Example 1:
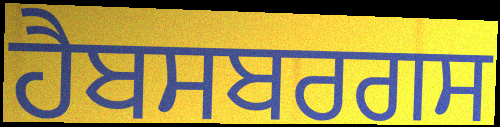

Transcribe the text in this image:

ਹੈਬਸਬਰਗਸ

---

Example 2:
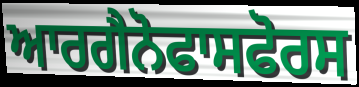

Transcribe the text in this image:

ਆਰਗੈਨੋਫਾਸਫੋਰਸ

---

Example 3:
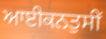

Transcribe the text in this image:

ਆਈਕਨਤੁਸੀਂ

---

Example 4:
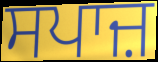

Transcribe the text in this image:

ਸਪਾਜ਼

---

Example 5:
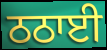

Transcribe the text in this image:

ਠਠਾਈ